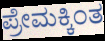
ಪ್ರೇಮಕ್ಕಿಂತ